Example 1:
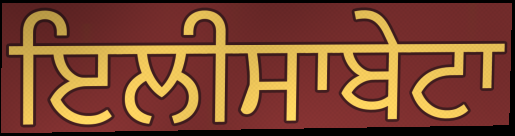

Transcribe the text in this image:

ਇਲੀਸਾਬੇਟਾ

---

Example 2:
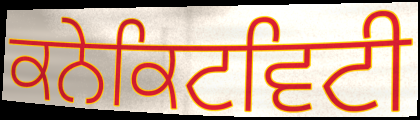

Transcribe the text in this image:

ਕਨੇਕਿਟਵਿਟੀ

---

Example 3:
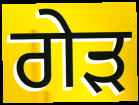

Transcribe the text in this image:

ਗੇੜ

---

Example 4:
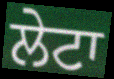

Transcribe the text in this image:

ਲੇਟਾ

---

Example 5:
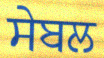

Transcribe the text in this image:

ਸੇਬਲ